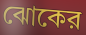
ঝোকের